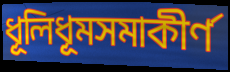
ধূলিধূমসমাকীর্ণ